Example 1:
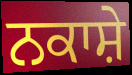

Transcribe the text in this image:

ਨਕਾਸ਼ੇ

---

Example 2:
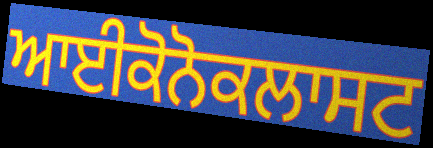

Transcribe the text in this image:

ਆਈਕੋਨੋਕਲਾਸਟ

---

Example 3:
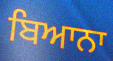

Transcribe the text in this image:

ਬਿਆਨਾ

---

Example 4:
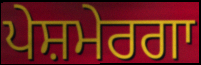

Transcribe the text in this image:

ਪੇਸ਼ਮੇਰਗਾ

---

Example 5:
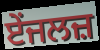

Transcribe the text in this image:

ਏਂਜਲਜ਼